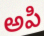
అపి